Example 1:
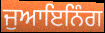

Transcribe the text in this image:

ਜੁਆਇਨਿੰਗ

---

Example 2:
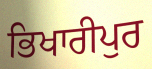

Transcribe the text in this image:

ਭਿਖਾਰੀਪੁਰ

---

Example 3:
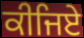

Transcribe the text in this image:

ਕੀਜਿਏ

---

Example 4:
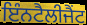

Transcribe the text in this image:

ਇੰਨਟੈਲੀਜੈਂਟ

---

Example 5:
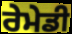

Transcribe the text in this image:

ਰੇਮੇਡੀ